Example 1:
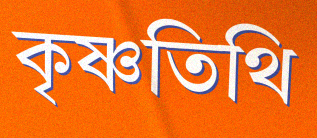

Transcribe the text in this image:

কৃষ্ণতিথি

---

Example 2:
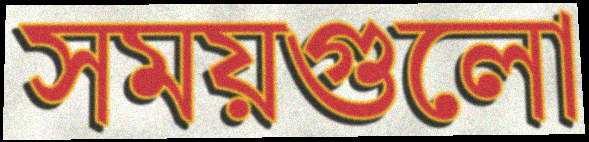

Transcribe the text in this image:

সময়গুলো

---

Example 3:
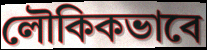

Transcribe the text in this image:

লৌকিকভাবে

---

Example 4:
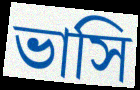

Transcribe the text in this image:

ভাসি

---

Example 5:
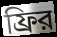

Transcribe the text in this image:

ফ্রির